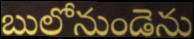
బులోనుండెను